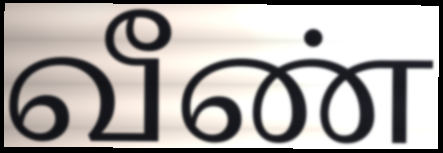
வீண்